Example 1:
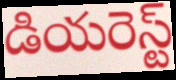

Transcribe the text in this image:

డియరెస్ట్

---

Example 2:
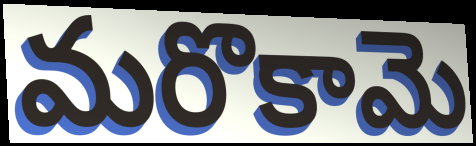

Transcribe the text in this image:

మరొకామె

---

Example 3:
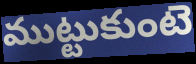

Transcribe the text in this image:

ముట్టుకుంటె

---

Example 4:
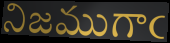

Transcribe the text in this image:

నిజముగాఁ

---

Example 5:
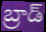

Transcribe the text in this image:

బ్రాడ్